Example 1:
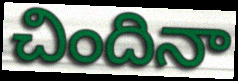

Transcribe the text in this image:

చిందినా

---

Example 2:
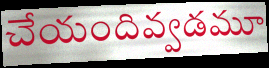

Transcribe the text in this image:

చేయందివ్వడమూ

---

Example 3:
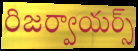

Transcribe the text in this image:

రిజర్వాయర్స్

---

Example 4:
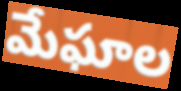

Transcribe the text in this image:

మేఘాల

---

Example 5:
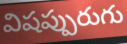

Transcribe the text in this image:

విషప్పురుగు